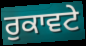
ਰੁਕਾਵਟੇ